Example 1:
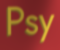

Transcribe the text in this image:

Psy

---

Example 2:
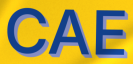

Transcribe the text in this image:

CAE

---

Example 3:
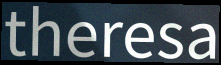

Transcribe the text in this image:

theresa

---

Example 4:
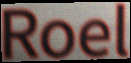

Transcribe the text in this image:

Roel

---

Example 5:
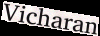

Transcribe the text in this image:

Vicharan